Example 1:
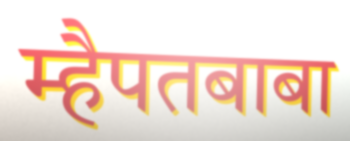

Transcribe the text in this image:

म्हैपतबाबा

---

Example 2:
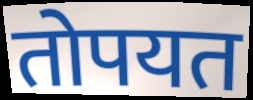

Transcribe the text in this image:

तोपयत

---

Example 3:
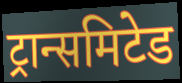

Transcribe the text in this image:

ट्रान्समिटेड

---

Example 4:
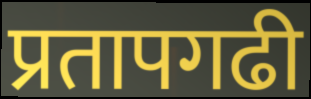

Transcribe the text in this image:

प्रतापगढी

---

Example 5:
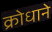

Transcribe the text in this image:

क्रोधाने